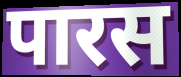
पारस